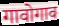
गावोगाव